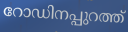
റോഡിനപ്പുറത്ത്